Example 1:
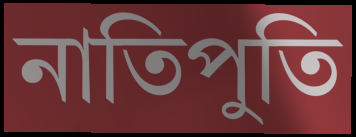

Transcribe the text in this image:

নাতিপুতি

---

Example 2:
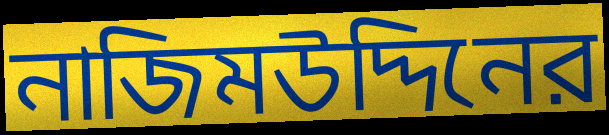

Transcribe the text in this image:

নাজিমউদ্দিনের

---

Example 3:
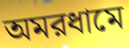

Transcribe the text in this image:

অমরধামে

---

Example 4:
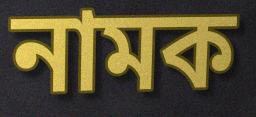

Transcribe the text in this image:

নামক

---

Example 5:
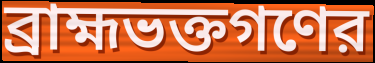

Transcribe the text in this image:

ব্রাহ্মভক্তগণের